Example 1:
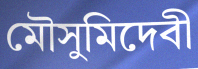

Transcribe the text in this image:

মৌসুমিদেবী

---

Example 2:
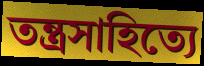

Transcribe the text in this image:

তন্ত্রসাহিত্যে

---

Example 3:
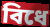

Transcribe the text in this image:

বিধে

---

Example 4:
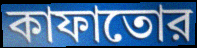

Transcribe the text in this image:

কাফাতোর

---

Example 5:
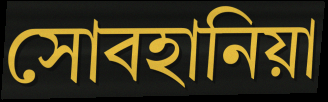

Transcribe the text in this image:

সোবহানিয়া